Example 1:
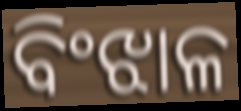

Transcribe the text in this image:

ବିଂଝାଳ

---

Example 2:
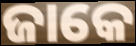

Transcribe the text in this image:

ଜାକେ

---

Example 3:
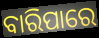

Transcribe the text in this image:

ବାରିପାରେ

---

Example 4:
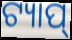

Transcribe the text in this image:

ଟ୍ୟାପ୍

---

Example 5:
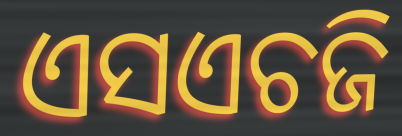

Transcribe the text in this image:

ଏସଏଚଜି